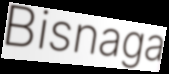
Bisnaga